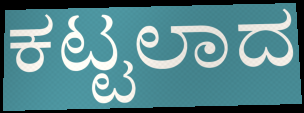
ಕಟ್ಟಲಾದ